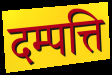
दम्पत्ति